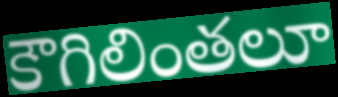
కౌగిలింతలూ